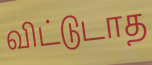
விட்டுடாத